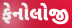
ફેનોલોજી